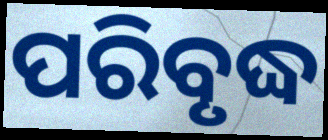
ପରିବୃଦ୍ଧ